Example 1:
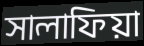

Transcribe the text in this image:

সালাফিয়া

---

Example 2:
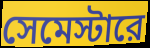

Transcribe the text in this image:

সেমেস্টারে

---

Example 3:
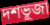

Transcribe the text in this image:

দশভূজা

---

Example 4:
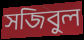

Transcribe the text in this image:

সজিবুল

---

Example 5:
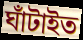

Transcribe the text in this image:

ঘাঁটাইত